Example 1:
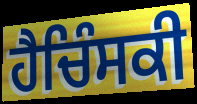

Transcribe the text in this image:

ਹੈਚਿੰਸਕੀ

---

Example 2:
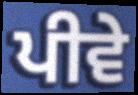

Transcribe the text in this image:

ਪੀਵੇ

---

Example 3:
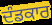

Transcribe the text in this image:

ਦੰਡਕਾਰ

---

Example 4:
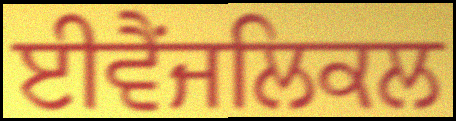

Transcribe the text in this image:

ਈਵੈਂਜਲਿਕਲ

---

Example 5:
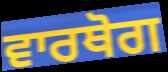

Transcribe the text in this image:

ਵਾਰਥੋਗ